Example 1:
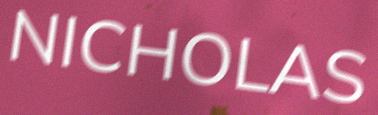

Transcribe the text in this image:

NICHOLAS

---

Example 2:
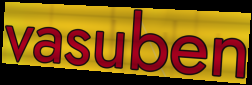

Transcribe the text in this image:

vasuben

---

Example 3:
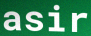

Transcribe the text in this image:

asir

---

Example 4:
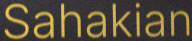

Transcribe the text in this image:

Sahakian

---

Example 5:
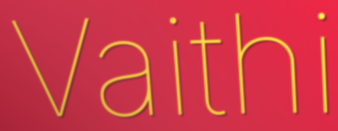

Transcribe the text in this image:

Vaithi